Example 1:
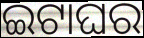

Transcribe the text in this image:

ଇଟାଘର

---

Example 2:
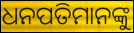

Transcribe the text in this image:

ଧନପତିମାନଙ୍କୁ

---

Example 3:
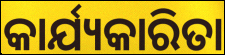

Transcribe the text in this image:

କାର୍ଯ୍ୟକାରିତା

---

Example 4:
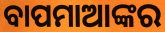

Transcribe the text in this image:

ବାପମାଆଙ୍କର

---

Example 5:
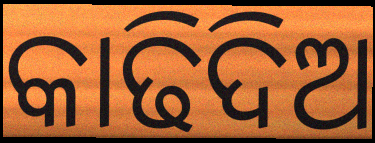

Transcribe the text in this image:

କାଢିଦିଅ